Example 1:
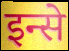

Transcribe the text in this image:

इन्से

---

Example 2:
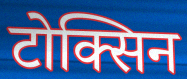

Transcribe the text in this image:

टोक्सिन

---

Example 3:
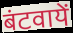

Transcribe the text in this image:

बंटवायें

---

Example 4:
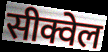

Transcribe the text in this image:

सीक्वेल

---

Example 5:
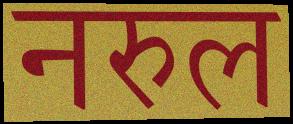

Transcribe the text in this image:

नरुल